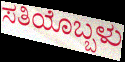
ಸತಿಯೊಬ್ಬಳು